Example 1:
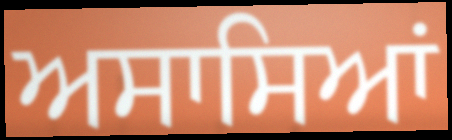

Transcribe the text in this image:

ਅਸਾਸਿਆਂ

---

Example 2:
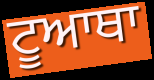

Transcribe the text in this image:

ਟੂਆਥਾ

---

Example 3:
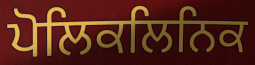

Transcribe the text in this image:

ਪੋਲਿਕਲਿਨਿਕ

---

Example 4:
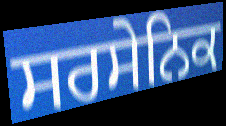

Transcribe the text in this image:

ਸਰਸੇਨਿਕ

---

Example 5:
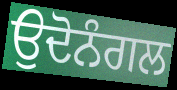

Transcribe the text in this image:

ਉਦੋਨੰਗਲ